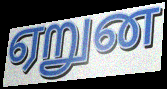
ஏறுன